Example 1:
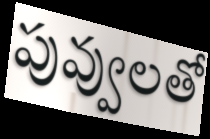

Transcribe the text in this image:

పువ్వులతో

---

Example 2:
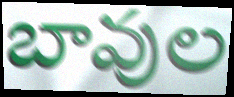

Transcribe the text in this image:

బావుల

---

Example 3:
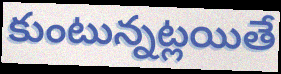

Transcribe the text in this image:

కుంటున్నట్లయితే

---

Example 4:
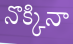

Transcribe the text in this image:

నొక్కినా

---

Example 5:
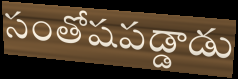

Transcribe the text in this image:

సంతోషపడ్డాడు